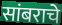
सांबराचे